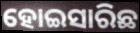
ହୋଇସାରିଛ